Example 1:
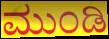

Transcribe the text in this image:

ಮುಂಡಿ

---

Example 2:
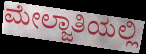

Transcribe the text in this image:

ಮೇಲ್ಜಾತಿಯಲ್ಲಿ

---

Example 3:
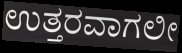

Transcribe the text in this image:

ಉತ್ತರವಾಗಲೀ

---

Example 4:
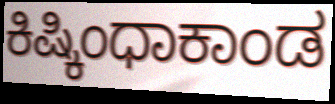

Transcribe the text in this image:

ಕಿಷ್ಕಿಂಧಾಕಾಂಡ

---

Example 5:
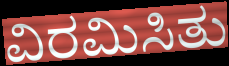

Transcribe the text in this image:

ವಿರಮಿಸಿತು